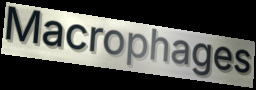
Macrophages